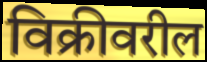
विक्रीवरील